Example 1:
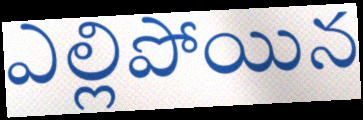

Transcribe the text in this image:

ఎల్లిపోయిన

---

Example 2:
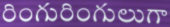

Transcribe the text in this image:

రింగురింగులుగా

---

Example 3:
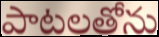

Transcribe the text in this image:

పాటలతోను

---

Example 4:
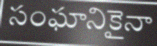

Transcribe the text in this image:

సంఘానికైనా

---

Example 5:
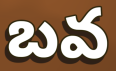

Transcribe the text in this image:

బవ